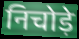
निचोड़े